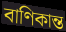
বাণিকান্ত